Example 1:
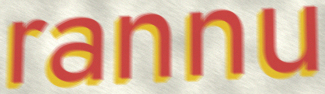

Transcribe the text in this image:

rannu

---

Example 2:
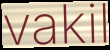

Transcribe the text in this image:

vakil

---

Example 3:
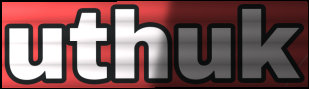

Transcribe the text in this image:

uthuk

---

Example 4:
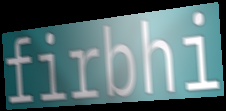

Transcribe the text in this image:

firbhi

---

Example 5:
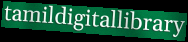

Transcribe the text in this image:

tamildigitallibrary